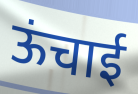
ऊंचाई